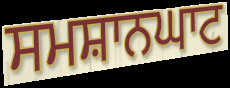
ਸਮਸ਼ਾਨਘਾਟ